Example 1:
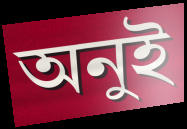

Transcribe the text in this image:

অনুই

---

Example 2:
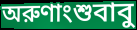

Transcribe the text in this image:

অরুণাংশুবাবু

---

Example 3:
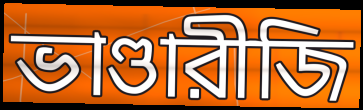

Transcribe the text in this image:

ভাণ্ডারীজি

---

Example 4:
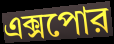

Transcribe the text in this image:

এক্সপোর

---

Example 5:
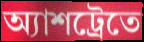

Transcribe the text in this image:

অ্যাশট্রেতে